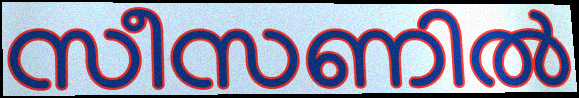
സീസണിൽ